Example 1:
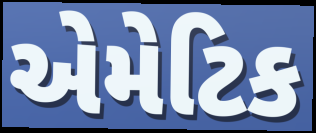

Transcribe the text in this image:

એમેટિક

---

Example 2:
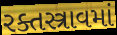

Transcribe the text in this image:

રક્તસ્ત્રાવમાં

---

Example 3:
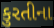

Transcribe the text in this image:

કુરતીના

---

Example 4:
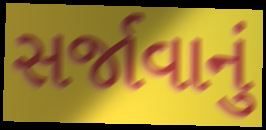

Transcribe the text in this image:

સર્જાવાનું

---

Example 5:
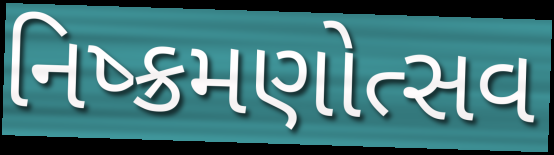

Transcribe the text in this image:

નિષ્ક્રમણોત્સવ